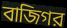
বাজিগর